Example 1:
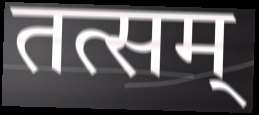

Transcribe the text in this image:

तत्सम्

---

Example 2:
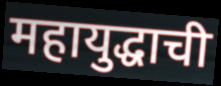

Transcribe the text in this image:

महायुद्धाची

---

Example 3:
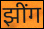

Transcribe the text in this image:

झींग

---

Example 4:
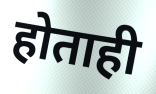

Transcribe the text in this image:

होताही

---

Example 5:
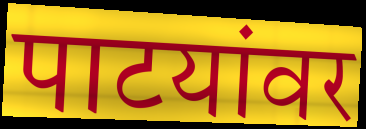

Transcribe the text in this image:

पाटयांवर